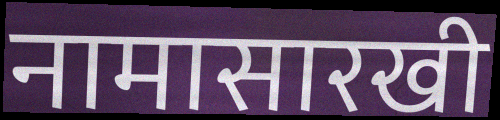
नामासारखी